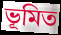
ভূমিত